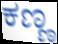
ಕಣ್ಣ